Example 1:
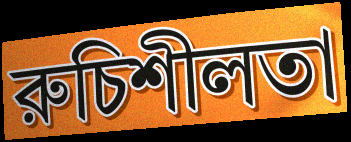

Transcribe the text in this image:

রুচিশীলতা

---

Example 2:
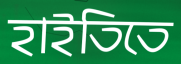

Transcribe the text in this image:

হাইতিতে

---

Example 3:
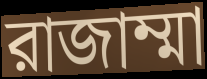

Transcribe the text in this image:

রাজাম্মা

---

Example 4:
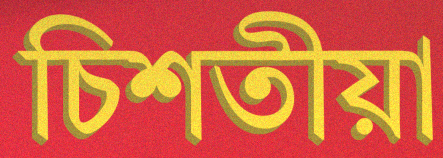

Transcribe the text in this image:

চিশতীয়া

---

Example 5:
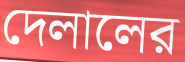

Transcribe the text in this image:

দেলালের